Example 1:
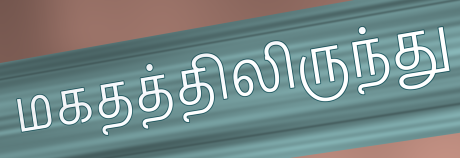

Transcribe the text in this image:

மகதத்திலிருந்து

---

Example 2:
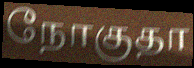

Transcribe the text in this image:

நோகுதா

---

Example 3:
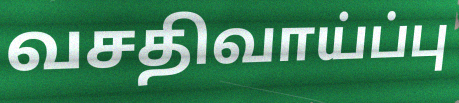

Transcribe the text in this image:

வசதிவாய்ப்பு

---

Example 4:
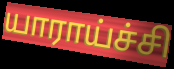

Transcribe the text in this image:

யாராய்ச்சி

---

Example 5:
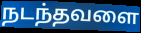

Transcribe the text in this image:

நடந்தவளை